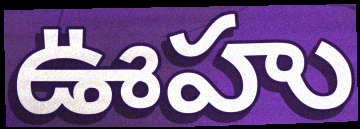
ఊహు